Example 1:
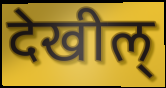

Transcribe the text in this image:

देखील्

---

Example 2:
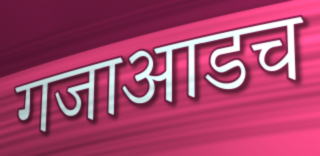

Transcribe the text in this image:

गजाआडच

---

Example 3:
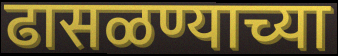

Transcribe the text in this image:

ढासळण्याच्या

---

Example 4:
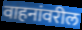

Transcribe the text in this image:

वाहनांवरील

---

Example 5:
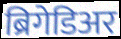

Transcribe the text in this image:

ब्रिगेडिअर